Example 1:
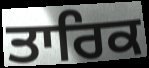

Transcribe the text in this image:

ਤਾਰਿਕ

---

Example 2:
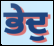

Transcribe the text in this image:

ਭੇਦੁ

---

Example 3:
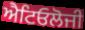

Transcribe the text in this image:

ਐਟਿਓਲੋਜੀ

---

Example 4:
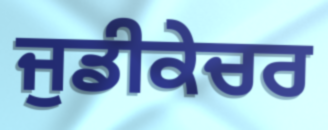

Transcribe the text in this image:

ਜੁਡੀਕੇਚਰ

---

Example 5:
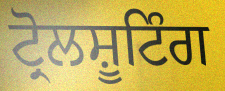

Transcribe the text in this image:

ਟ੍ਰੋਲਸ਼ੂਟਿੰਗ